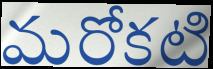
మరోకటి